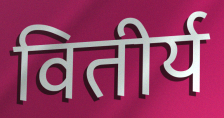
वितीर्य